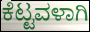
ಕೆಟ್ಟವಳಾಗಿ